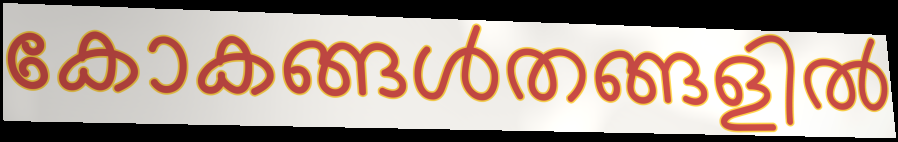
കോകങ്ങൾതങ്ങളിൽ